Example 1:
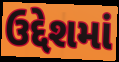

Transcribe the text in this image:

ઉદ્દેશમાં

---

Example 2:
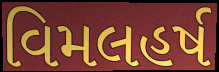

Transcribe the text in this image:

વિમલહર્ષ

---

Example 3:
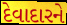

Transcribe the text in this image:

દેવાદારને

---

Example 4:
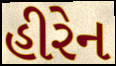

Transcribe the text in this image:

હીરેન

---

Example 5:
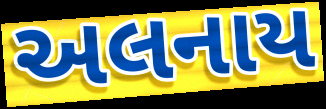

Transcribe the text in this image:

અલનાય